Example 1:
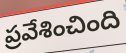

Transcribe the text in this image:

ప్రవేశించింది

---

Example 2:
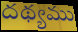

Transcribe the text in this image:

దథ్యము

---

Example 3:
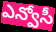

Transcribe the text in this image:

ఎన్వోసీ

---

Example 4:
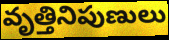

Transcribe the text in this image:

వృత్తినిపుణులు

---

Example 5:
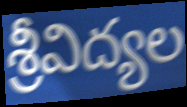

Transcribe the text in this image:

శ్రీవిద్యల